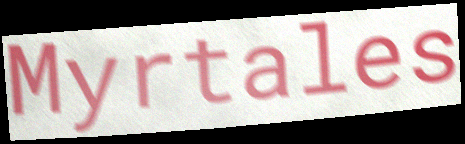
Myrtales